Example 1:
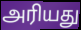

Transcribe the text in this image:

அரியது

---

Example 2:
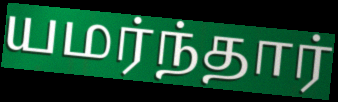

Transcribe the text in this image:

யமர்ந்தார்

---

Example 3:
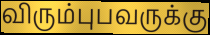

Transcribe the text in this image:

விரும்புபவருக்கு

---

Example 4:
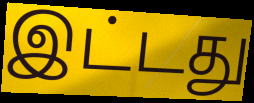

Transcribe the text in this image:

இட்டது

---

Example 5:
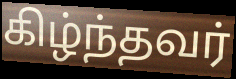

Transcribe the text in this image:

கிழ்ந்தவர்